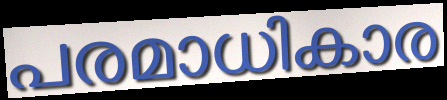
പരമാധികാര